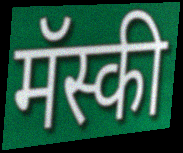
मॅस्की